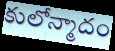
కులోన్మాదం